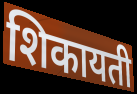
शिकायती